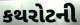
કથરોટની